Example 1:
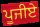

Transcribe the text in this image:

ਪੂਜੀਏ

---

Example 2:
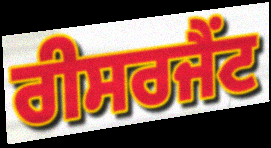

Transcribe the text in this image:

ਰੀਸਰਜੈਂਟ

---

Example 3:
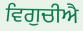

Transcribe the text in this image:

ਵਿਗੁਚੀਐ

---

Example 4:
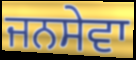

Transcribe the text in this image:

ਜਨਸੇਵਾ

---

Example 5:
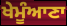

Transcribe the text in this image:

ਖੇਮੂੰਆਣਾ